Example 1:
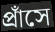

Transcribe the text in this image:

প্রাঁসে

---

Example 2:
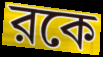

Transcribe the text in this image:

রকে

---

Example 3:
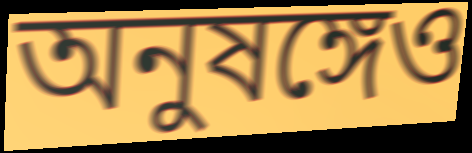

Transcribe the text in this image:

অনুষঙ্গেও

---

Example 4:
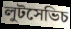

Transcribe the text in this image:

লুটসেভিচ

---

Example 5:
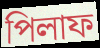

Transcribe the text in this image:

পিলাফ